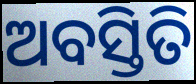
ଅବସ୍ତିତି